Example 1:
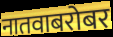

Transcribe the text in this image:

नातवाबरोबर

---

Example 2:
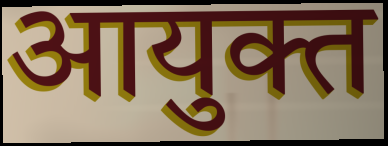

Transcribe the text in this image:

आयुक्‍त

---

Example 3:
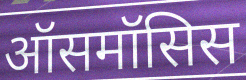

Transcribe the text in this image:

ऑसमॉसिस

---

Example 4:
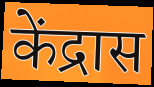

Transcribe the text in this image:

केंद्रास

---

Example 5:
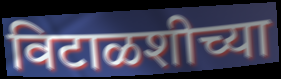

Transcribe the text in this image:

विटाळशीच्या